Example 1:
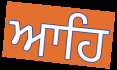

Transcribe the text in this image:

ਆਹਿ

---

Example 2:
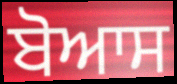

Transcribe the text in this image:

ਬੋਆਸ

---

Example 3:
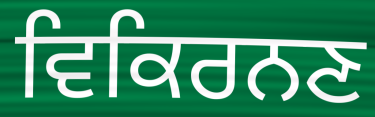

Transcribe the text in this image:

ਵਿਕਿਰਨਣ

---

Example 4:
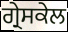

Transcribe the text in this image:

ਗ੍ਰੇਸਕੇਲ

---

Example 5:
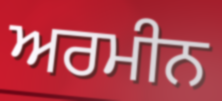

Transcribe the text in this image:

ਅਰਮੀਨ